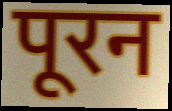
पूरन